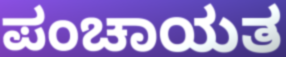
ಪಂಚಾಯತ